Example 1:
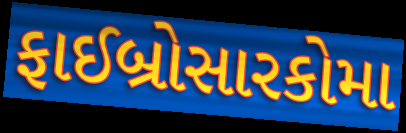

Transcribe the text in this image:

ફાઈબ્રોસારકોમા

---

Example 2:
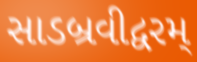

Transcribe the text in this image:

સાડબ્રવીદ્વરમ્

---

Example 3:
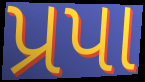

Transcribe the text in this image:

પ્રપા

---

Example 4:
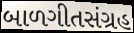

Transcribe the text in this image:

બાળગીતસંગ્રહ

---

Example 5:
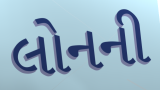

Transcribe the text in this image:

લોનની